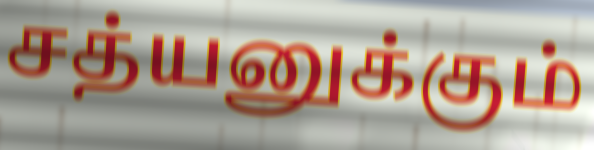
சத்யனுக்கும்